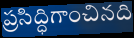
ప్రసిద్ధిగాంచినది